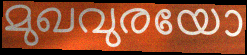
മുഖവുരയോ